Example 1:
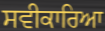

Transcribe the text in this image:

ਸਵੀਕਾਰਿਆ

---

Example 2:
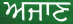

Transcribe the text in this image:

ਅਜਾਣ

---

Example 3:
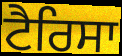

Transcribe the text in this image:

ਟੈਰਿਸਾ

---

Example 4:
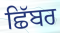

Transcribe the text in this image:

ਛਿੱਬਰ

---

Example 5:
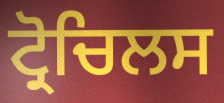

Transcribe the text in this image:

ਟ੍ਰੋਚਿਲਸ